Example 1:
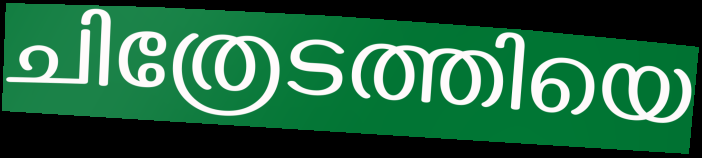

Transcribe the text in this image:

ചിത്രേടത്തിയെ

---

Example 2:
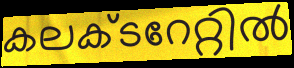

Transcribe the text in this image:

കലക്ടറേറ്റിൽ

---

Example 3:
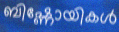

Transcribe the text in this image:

ബിഷ്ണോയികൾ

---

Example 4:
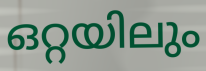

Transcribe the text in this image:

ഒറ്റയിലും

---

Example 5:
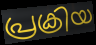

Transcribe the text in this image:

പ്രക്രിയ